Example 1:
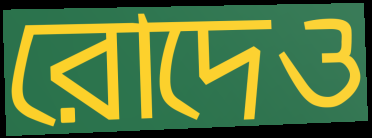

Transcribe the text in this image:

রোদেও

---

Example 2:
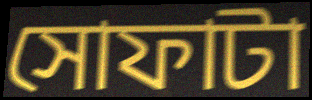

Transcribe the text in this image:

সোফাটা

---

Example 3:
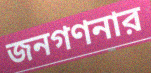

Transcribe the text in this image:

জনগণনার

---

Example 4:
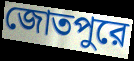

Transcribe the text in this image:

জোতপুরে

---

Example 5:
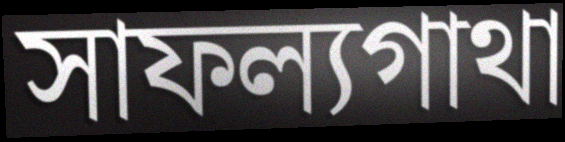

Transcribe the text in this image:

সাফল্যগাথা